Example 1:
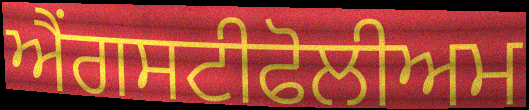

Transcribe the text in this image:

ਐਂਗਸਟੀਫੋਲੀਅਮ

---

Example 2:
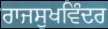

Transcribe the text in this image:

ਰਾਜਸੁਖਵਿੰਦਰ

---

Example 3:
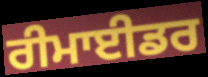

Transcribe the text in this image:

ਰੀਮਾਈਡਰ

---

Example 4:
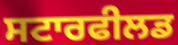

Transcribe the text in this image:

ਸਟਾਰਫੀਲਡ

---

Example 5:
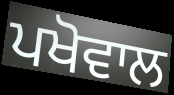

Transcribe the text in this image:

ਪਖੋਵਾਲ